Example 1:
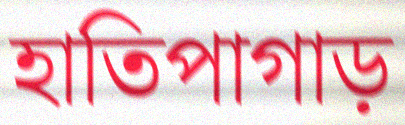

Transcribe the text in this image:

হাতিপাগাড়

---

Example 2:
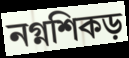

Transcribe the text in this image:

নগ্নশিকড়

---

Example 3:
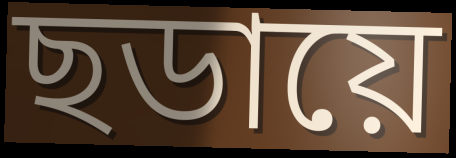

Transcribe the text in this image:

ছডায়ে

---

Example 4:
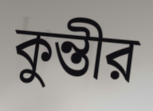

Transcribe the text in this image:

কুন্তীর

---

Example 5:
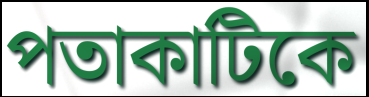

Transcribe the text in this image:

পতাকাটিকে